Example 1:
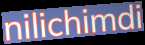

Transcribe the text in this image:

nilichimdi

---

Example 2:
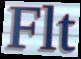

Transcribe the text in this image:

Flt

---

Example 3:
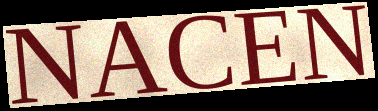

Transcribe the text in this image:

NACEN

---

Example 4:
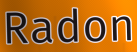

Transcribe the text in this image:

Radon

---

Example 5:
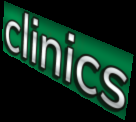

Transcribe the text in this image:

clinics